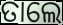
ତାଲେ